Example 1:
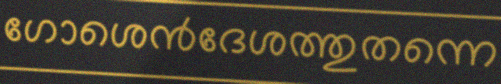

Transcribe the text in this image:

ഗോശെൻദേശത്തുതന്നെ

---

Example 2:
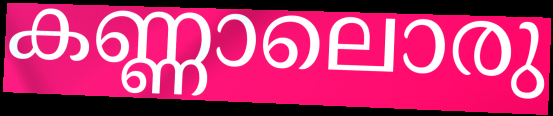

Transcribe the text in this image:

കണ്ണാലൊരു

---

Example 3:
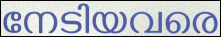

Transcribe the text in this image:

നേടിയവരെ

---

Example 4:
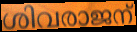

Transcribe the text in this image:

ശിവരാജന്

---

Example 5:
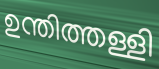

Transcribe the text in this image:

ഉന്തിത്തള്ളി